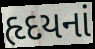
હૃદયનાં